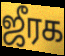
ஜீரக